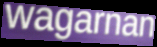
wagarnan